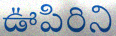
ఊపిరిని